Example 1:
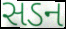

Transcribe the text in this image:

સડન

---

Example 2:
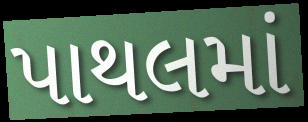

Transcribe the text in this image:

પાથલમાં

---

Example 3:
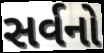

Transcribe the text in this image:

સર્વનો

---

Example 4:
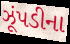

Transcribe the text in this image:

ઝૂંપડીના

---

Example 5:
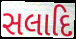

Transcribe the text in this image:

સલાદિ